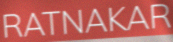
RATNAKAR